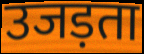
उजड़ता